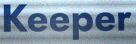
Keeper